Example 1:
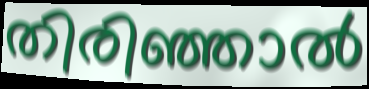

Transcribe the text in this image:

തിരിഞ്ഞാൽ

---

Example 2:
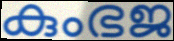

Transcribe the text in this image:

കുംഭജ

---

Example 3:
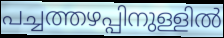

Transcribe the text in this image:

പച്ചത്തഴപ്പിനുള്ളിൽ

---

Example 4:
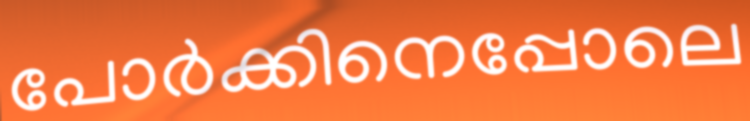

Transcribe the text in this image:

പോർക്കിനെപ്പോലെ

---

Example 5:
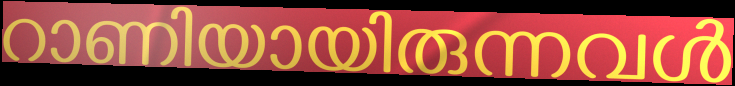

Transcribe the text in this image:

റാണിയായിരുന്നവൾ